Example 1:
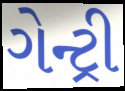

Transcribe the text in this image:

ગેન્ટ્રી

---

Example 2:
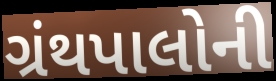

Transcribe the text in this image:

ગ્રંથપાલોની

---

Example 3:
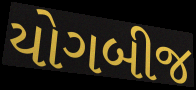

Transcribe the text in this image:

યોગબીજ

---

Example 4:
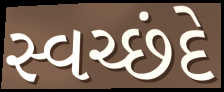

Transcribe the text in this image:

સ્વચ્છંદે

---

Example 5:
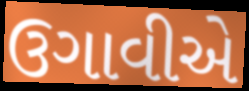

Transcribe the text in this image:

ઉગાવીએ